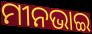
ମୀନଭାଇ